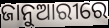
ଜାନୁଆରୀରେ